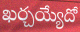
ఖర్చయ్యేదో